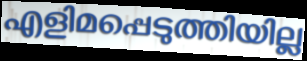
എളിമപ്പെടുത്തിയില്ല